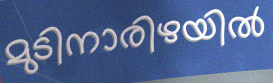
മുടിനാരിഴയിൽ